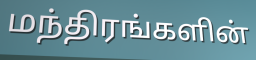
மந்திரங்களின்